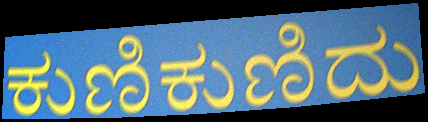
ಕುಣಿಕುಣಿದು